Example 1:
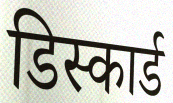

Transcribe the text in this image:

डिस्कार्ड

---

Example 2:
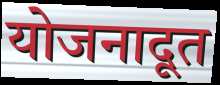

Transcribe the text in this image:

योजनादूत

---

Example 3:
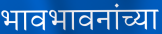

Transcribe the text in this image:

भावभावनांच्या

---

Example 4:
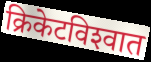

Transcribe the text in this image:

क्रिकेटविश्‍वात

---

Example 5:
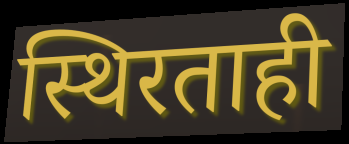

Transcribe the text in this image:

स्थिरताही